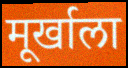
मूर्खाला